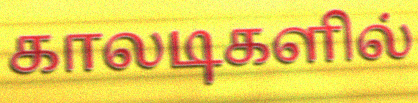
காலடிகளில்